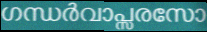
ഗന്ധർവാപ്സരസോ